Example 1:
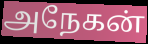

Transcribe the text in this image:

அநேகன்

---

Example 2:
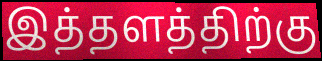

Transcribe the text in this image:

இத்தளத்திற்கு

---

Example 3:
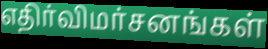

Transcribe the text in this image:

எதிர்விமர்சனங்கள்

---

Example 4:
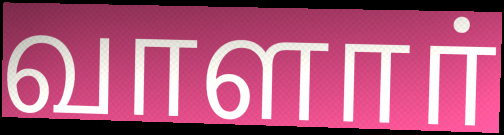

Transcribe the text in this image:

வாளார்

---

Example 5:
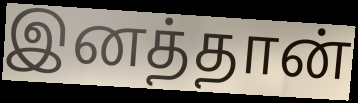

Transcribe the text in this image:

இனத்தான்